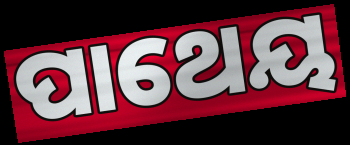
ପାଥେୟ